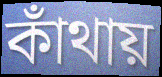
কাঁথায়